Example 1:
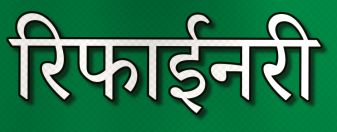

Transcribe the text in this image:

रिफाईनरी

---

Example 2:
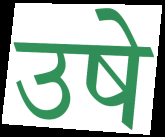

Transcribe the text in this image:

उषे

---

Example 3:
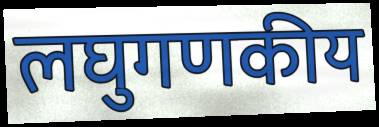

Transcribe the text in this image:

लघुगणकीय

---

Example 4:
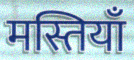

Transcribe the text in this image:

मस्तियाँ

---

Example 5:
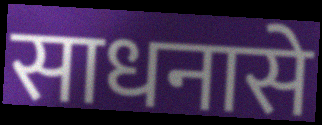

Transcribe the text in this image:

साधनासे